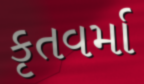
કૃતવર્મા